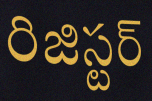
రిజిస్టర్